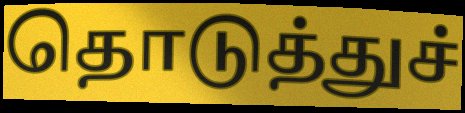
தொடுத்துச்